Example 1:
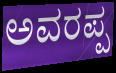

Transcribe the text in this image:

ಅವರಪ್ಪ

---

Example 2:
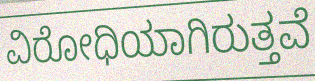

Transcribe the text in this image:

ವಿರೋಧಿಯಾಗಿರುತ್ತವೆ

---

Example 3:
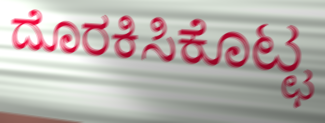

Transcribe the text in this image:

ದೊರಕಿಸಿಕೊಟ್ಟ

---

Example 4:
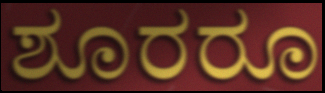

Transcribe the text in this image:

ಶೂರರೂ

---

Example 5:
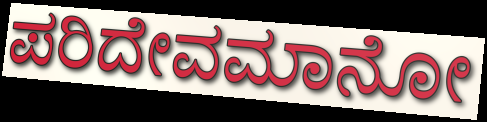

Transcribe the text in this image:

ಪರಿದೇವಮಾನೋ